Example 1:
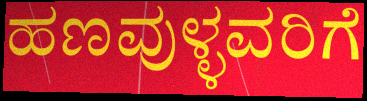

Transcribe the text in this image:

ಹಣವುಳ್ಳವರಿಗೆ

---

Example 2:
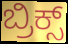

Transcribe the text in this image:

ಬ್ರಿಕ್ಸ್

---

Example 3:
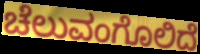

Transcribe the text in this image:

ಚೆಲುವಂಗೊಲಿದೆ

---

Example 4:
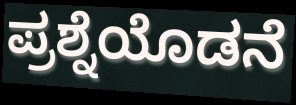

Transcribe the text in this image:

ಪ್ರಶ್ನೆಯೊಡನೆ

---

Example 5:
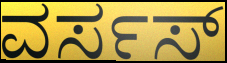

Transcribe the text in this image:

ವರ್ಸಸ್